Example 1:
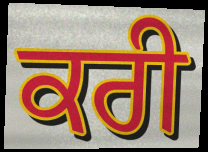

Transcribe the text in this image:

ਕਰੀ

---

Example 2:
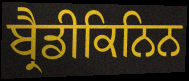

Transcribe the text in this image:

ਬ੍ਰੈਡੀਕਿਨਿਨ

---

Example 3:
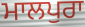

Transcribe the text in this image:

ਮਾਲਪੁਰਾ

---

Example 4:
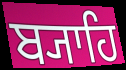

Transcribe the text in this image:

ਬ੍ਯਾਹਿ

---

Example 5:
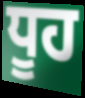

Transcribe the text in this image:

ਧੂਹ